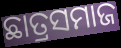
ଛାତ୍ରସମାଜ